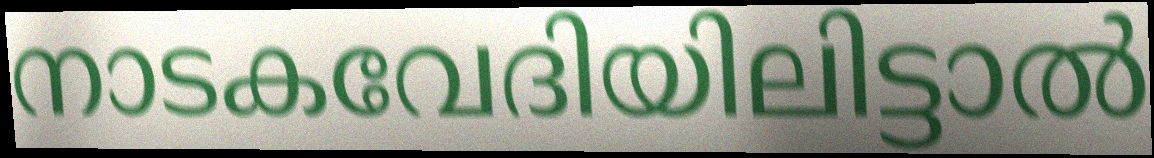
നാടകവേദിയിലിട്ടാൽ